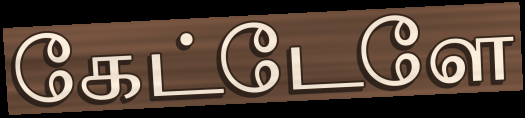
கேட்டேளே